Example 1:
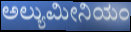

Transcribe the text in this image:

ಅಲ್ಯುಮೀನಿಯಂ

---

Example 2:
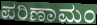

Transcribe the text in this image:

ಪರಿಣಾಮಂ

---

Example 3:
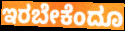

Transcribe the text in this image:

ಇರಬೇಕೆಂದೂ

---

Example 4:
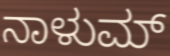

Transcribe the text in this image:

ನಾಳುಮ್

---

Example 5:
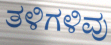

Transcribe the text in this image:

ತಳಿಗಳಿವು